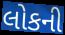
લોકની